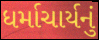
ધર્માચાર્યનું